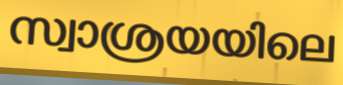
സ്വാശ്രയയിലെ